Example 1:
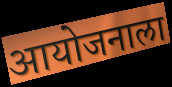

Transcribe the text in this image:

आयोजनाला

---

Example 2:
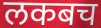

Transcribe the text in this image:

लकबच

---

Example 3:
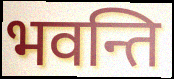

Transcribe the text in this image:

भवन्ति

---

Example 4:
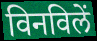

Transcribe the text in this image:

विनविलें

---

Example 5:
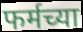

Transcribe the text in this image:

फर्मच्या